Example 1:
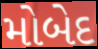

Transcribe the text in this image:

મોબેદ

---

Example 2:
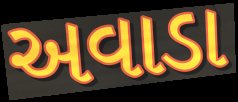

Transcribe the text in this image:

અવાડા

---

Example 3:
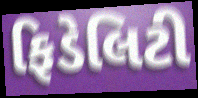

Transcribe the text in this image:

ફિડેલિટી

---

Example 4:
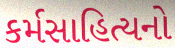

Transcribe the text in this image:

કર્મસાહિત્યનો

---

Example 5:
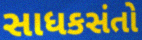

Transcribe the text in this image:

સાધકસંતો